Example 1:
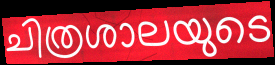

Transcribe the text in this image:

ചിത്രശാലയുടെ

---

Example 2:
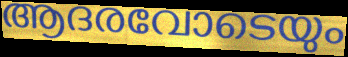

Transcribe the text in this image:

ആദരവോടെയും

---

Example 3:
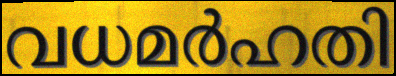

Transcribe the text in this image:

വധമർഹതി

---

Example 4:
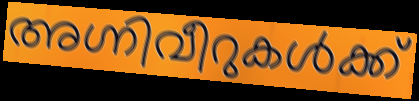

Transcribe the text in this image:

അഗ്നിവീറുകൾക്ക്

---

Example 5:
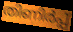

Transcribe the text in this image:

തിണിർപ്പ്